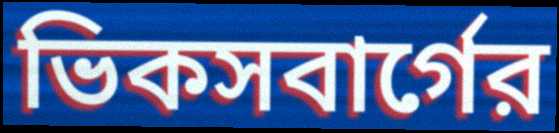
ভিকসবার্গের